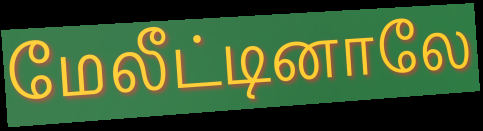
மேலீட்டினாலே